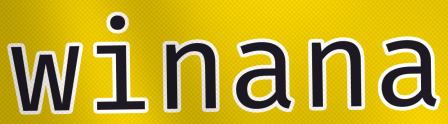
winana